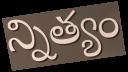
న్నిత్యం